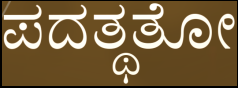
ಪದತ್ಥತೋ